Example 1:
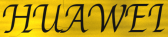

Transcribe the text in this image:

HUAWEI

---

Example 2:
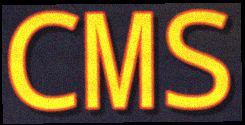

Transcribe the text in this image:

CMS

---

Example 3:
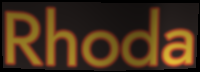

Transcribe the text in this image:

Rhoda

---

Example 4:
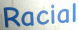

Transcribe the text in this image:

Racial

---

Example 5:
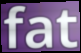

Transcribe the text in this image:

fat